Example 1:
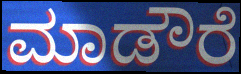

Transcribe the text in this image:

ಮಾಡೌರೆ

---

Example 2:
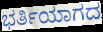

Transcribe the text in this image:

ಭರ್ತಿಯಾಗದ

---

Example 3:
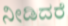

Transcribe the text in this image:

ನೀಡಿದರೆ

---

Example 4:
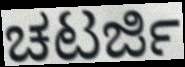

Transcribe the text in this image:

ಚಟರ್ಜಿ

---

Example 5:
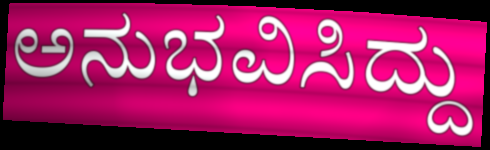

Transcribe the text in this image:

ಅನುಭವಿಸಿದ್ದು